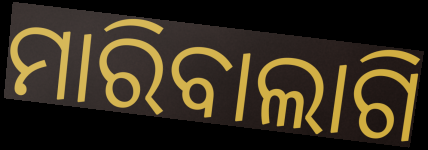
ମାରିବାଲାଗି